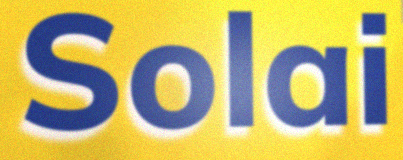
Solai